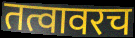
तत्वावरच